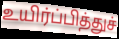
உயிர்ப்பித்துச்